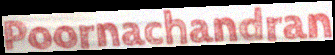
Poornachandran